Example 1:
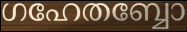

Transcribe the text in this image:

ഗഹേതബ്ബോ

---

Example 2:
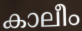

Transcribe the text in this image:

കാലീം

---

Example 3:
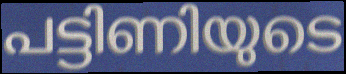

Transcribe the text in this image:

പട്ടിണിയുടെ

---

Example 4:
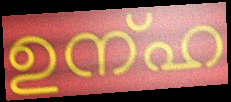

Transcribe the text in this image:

ഉന്ഹ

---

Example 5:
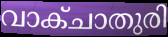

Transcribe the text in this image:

വാക്ചാതുരി